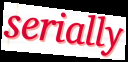
serially